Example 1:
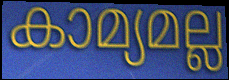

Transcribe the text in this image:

കാമ്യമല്ല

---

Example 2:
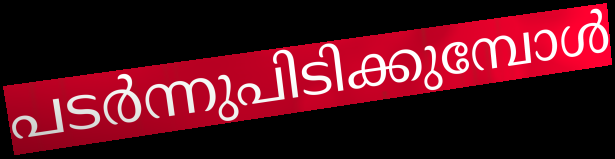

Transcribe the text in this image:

പടർന്നുപിടിക്കുമ്പോൾ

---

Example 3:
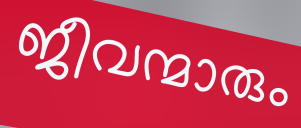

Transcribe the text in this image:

ജീവന്മാരും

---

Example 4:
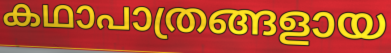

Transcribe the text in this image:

കഥാപാത്രങ്ങളായ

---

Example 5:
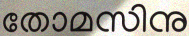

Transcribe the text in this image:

തോമസിനു